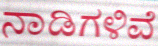
ನಾಡಿಗಳಿವೆ